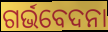
ଗର୍ଭବେଦନା